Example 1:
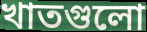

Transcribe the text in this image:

খাতগুলো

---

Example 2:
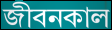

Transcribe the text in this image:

জীবনকাল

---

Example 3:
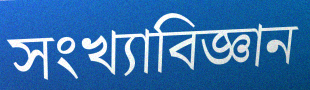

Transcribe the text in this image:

সংখ্যাবিজ্ঞান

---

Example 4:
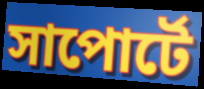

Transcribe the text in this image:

সাপোর্টে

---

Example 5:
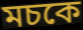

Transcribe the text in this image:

মচকে